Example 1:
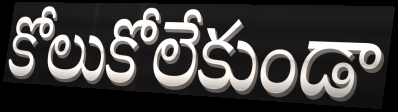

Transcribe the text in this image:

కోలుకోలేకుండా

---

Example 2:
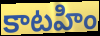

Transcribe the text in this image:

కాటహిం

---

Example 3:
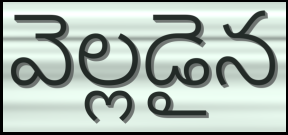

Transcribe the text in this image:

వెల్లడైన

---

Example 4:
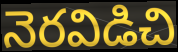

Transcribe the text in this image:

నెరవిడిచి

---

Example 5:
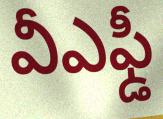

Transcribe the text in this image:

వీఎఫ్డీ